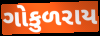
ગોકુળરાય